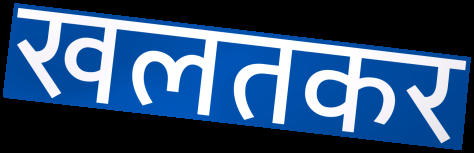
खलतकर